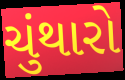
ચુંથારો